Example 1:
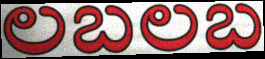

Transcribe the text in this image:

లబలబ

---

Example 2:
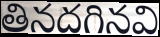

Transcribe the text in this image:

తినదగినవి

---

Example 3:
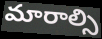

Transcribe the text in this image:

మారాల్సి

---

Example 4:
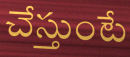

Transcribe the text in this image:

చేస్తుంటే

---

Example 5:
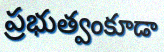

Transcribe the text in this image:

ప్రభుత్వంకూడా